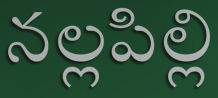
నల్లపిల్లి